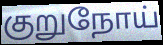
குறுநோய்